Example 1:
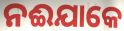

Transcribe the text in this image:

ନଈଯାକେ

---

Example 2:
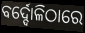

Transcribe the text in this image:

ବର୍ଦ୍ଦୋଳିଠାରେ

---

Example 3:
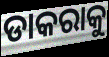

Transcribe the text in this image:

ଡାକରାକୁ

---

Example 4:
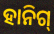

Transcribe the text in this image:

ହାନିଗ୍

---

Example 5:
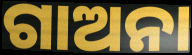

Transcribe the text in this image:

ଗାଅନା